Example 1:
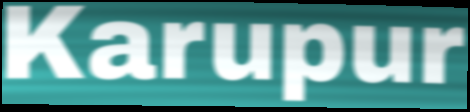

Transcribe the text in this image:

Karupur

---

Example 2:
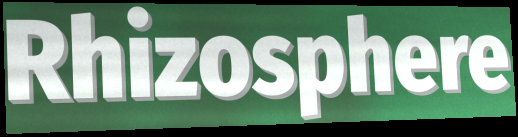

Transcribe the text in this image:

Rhizosphere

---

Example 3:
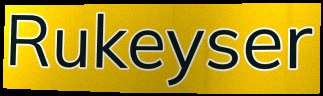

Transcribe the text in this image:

Rukeyser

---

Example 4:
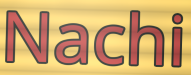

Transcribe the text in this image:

Nachi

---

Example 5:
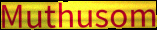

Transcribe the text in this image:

Muthusom